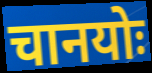
चानयोः